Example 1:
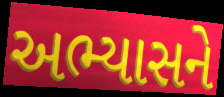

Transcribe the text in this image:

અભ્યાસને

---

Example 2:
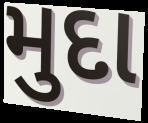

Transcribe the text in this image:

મુદા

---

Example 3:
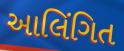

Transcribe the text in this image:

આલિંગિત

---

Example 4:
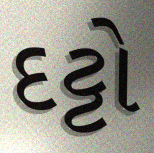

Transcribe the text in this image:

દટ્ટો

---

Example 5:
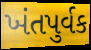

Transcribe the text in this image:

ખંતપુર્વક